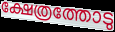
ക്ഷേത്രത്തോടു